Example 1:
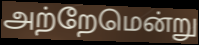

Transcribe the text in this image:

அற்றேமென்று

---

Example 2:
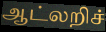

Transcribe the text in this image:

ஆட்லறிச்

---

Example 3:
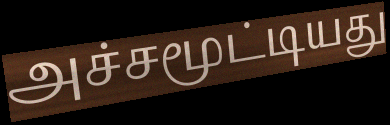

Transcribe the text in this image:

அச்சமூட்டியது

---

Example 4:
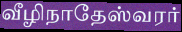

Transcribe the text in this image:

வீழிநாதேஸ்வரர்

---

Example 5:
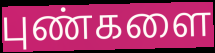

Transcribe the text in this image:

புண்களை